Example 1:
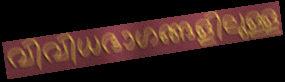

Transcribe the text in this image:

വിവിധഭാഗങ്ങളിലുള്ള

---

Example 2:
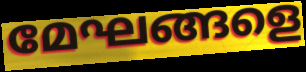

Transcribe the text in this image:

മേഘങ്ങളെ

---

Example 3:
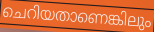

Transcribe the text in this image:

ചെറിയതാണെങ്കിലും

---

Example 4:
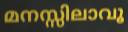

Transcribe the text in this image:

മനസ്സിലാവൂ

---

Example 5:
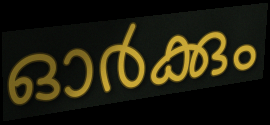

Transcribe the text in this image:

ഓർക്കും